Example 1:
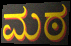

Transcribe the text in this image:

ಮಠ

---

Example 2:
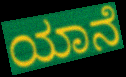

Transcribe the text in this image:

ಯಾನೆ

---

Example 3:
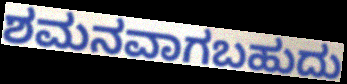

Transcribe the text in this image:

ಶಮನವಾಗಬಹುದು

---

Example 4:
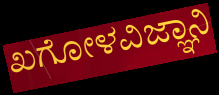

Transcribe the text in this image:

ಖಗೋಳವಿಜ್ಞಾನಿ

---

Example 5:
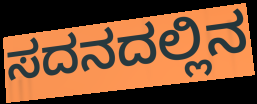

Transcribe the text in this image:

ಸದನದಲ್ಲಿನ